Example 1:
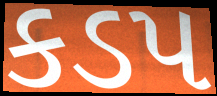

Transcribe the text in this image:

કડપ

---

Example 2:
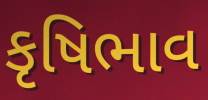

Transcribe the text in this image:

કૃષિભાવ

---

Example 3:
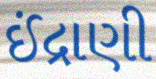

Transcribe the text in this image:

ઈંદ્રાણી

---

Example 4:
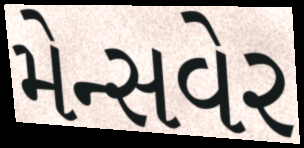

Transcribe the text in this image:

મેન્સવેર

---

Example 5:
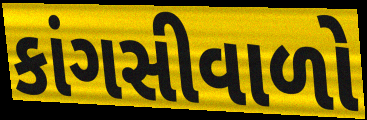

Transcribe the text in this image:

કાંગસીવાળો